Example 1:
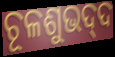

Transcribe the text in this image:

ଚୂଳଶୁଭଦ୍‍ଦ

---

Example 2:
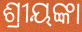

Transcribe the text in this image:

ଶ୍ରୀୟଙ୍କା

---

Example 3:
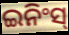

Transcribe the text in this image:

ଇନିଂସ୍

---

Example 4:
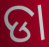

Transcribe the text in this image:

ଡା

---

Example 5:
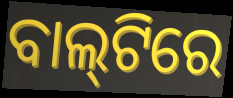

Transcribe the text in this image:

ବାଲ୍‌ଟିରେ